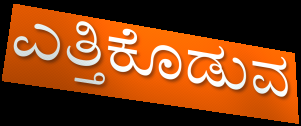
ಎತ್ತಿಕೊಡುವ